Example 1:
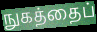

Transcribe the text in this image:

நுகத்தைப்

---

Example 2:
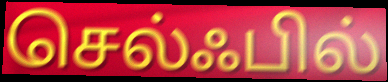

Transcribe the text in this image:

செல்ஃபில்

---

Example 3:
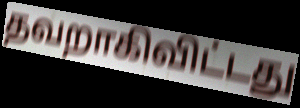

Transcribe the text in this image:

தவறாகிவிட்டது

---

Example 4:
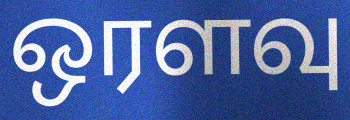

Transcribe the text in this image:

ஒரளவு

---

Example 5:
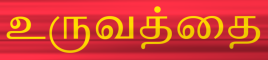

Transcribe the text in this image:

உருவத்தை